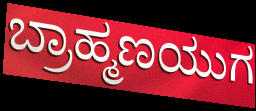
ಬ್ರಾಹ್ಮಣಯುಗ